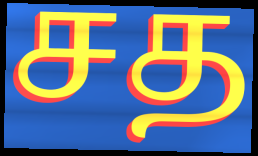
சத